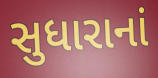
સુધારાનાં